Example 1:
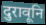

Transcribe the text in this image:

दुरावूनि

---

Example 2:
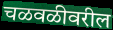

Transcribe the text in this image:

चळवळीवरील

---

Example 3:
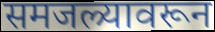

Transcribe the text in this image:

समजल्यावरून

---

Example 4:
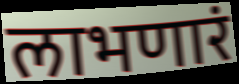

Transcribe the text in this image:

लाभणारं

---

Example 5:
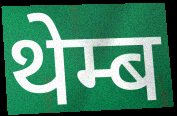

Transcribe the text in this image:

थेम्ब